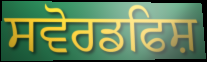
ਸਵੋਰਡਫਿਸ਼